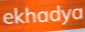
ekhadya